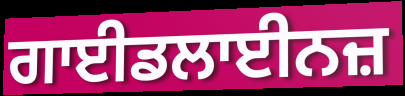
ਗਾਈਡਲਾਈਨਜ਼